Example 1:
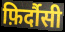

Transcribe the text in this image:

फ़िर्दौसी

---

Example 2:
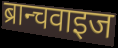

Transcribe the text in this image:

ब्रान्चवाइज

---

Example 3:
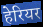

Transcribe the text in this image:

हेरियर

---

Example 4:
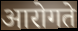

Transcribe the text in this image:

आरोगते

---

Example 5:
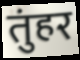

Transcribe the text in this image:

तुंहर